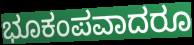
ಭೂಕಂಪವಾದರೂ